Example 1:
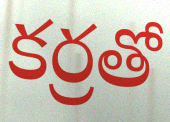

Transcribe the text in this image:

కర్రతో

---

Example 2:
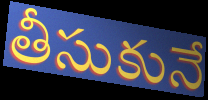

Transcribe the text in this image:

తీసుకునే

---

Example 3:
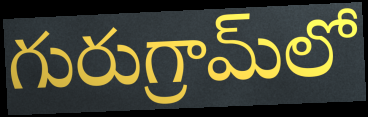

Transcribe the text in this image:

గురుగ్రామ్‌లో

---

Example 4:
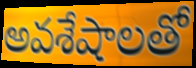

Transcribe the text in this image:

అవశేషాలతో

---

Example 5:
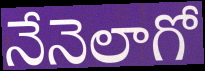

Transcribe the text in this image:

నేనెలాగో